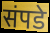
संपडे